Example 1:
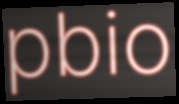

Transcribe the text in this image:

pbio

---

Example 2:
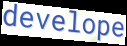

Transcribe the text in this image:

develope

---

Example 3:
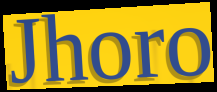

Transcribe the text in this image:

Jhoro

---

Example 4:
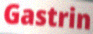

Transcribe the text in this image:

Gastrin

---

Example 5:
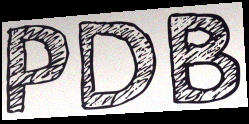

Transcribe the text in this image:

PDB